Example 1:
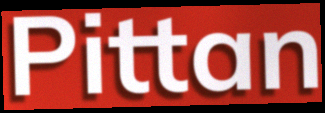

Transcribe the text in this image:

Pittan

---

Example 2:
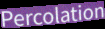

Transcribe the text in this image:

Percolation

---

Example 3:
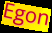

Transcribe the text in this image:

Egon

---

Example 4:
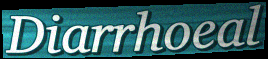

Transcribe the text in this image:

Diarrhoeal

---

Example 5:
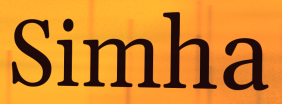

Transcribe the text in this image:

Simha